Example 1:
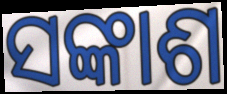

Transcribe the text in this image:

ସଙ୍କାଶ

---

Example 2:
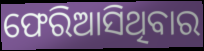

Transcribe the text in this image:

ଫେରିଆସିଥିବାର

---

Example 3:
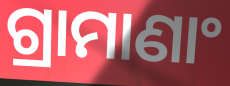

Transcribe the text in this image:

ଗ୍ରାମାଣାଂ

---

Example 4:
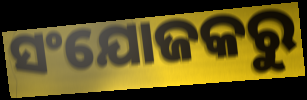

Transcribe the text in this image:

ସଂଯୋଜକରୁ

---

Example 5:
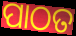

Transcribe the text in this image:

ପାଠତ